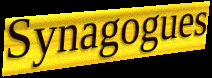
Synagogues